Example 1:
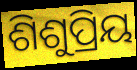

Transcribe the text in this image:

ଶିଶୁପ୍ରିୟ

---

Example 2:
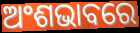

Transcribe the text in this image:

ଅଂଶଭାବରେ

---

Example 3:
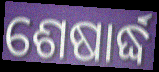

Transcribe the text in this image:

ଶେଷାର୍ଦ୍ଧ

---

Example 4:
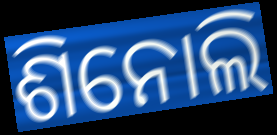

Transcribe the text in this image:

ଶିନୋଲି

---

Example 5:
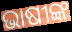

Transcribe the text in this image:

ଭାଷୀଙ୍କ